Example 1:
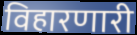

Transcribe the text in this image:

विहारणारी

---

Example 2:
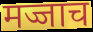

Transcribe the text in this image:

मज्जाच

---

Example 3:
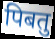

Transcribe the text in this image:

पिबतु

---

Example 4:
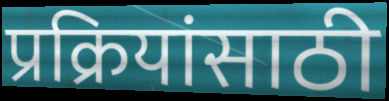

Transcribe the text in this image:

प्रक्रियांसाठी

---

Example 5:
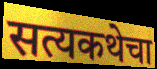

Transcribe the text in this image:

सत्यकथेचा